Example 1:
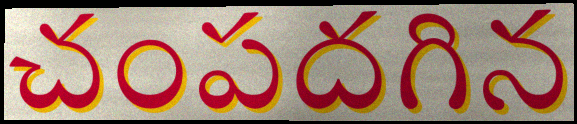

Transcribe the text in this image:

చంపదగిన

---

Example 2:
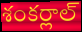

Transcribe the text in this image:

శంకర్లాల్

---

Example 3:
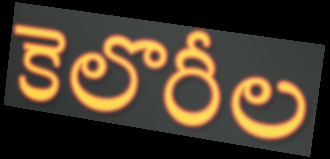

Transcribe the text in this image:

కెలొరీల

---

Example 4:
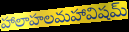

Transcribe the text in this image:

హాలాహలమహావిషమ్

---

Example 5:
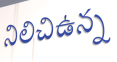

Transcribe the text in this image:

నిలిచిఉన్న